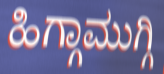
ಹಿಗ್ಗಾಮುಗ್ಗಿ